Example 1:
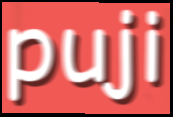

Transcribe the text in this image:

puji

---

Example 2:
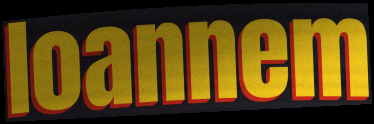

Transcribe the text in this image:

Ioannem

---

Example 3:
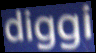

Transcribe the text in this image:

diggi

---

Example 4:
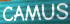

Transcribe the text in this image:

CAMUS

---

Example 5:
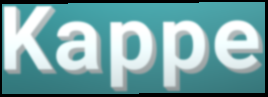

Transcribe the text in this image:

Kappe